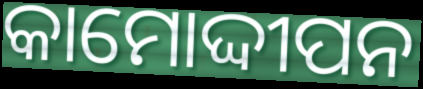
କାମୋଦ୍ଦୀପନ